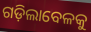
ଗଡ଼ିଲାବେଳକୁ